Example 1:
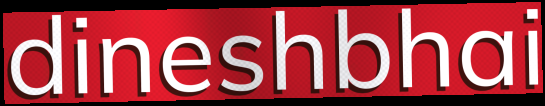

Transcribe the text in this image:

dineshbhai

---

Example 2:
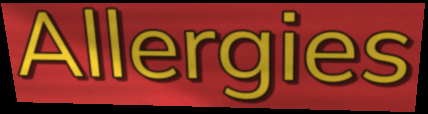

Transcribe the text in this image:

Allergies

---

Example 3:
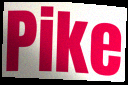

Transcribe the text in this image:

Pike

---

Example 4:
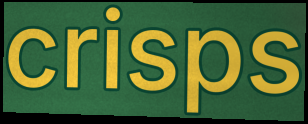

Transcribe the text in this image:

crisps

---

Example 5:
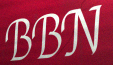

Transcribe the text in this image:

BBN